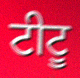
ਟੀਟੂ